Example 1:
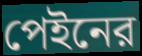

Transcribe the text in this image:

পেইনের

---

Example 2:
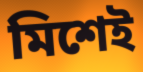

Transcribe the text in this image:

মিশেই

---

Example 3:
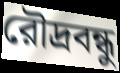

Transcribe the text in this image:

রৌদ্রবন্ধু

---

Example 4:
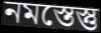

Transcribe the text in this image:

নমস্তেস্তু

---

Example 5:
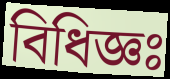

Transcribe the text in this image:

বিধিজ্ঞঃ